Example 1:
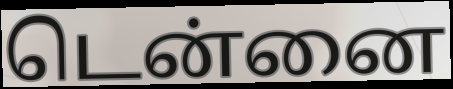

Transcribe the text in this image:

டென்னை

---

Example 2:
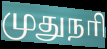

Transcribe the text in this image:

முதுநரி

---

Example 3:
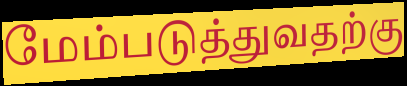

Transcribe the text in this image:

மேம்படுத்துவதற்கு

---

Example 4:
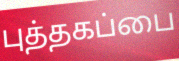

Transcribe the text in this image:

புத்தகப்பை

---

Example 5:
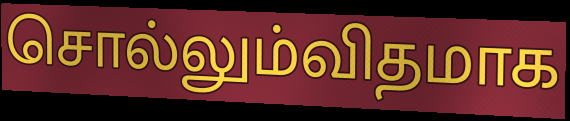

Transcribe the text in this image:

சொல்லும்விதமாக